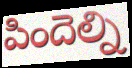
పిందెల్ని